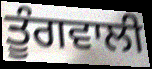
ਤੂੰਗਵਾਲੀ